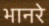
भानरे